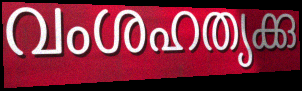
വംശഹത്യക്കു